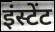
इंस्टेंट